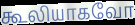
கூலியாகவோ